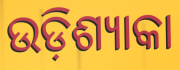
ଉଡ଼ିଶ୍ୟାକା